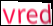
vred